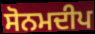
ਸੋਨਮਦੀਪ